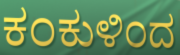
ಕಂಕುಳಿಂದ